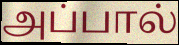
அப்பால்